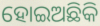
ହୋଇଅଛିକି